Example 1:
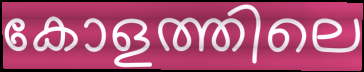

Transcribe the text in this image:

കോളത്തിലെ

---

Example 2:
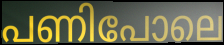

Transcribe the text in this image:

പണിപോലെ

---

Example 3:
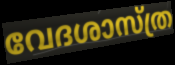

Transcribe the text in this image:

വേദശാസ്ത്ര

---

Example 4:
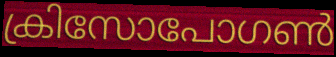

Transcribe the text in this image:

ക്രിസോപോഗൺ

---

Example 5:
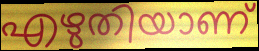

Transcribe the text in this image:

എഴുതിയാണ്